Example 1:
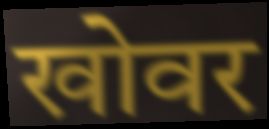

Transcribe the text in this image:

खोवर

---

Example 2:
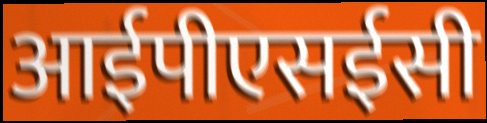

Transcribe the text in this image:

आईपीएसईसी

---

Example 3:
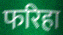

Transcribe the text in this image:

फरिहा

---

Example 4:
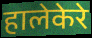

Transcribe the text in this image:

हालेकेरे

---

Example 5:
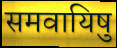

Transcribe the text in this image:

समवायिषु